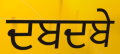
ਦਬਦਬੇ